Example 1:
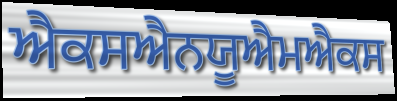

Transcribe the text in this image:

ਐਕਸਐਨਯੂਐਮਐਕਸ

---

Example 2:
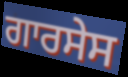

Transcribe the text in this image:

ਗਾਰਸੇਸ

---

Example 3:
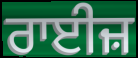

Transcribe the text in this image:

ਰਾਈਜ਼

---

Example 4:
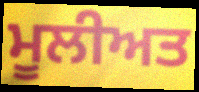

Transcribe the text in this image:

ਮੂਲੀਅਤ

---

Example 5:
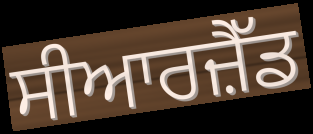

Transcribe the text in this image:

ਸੀਆਰਜ਼ੈੱਡ